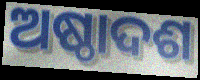
ଅଷ୍ଠାଦଶ